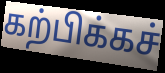
கற்பிக்கச்